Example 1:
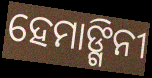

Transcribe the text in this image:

ହେମାଙ୍ଗିନୀ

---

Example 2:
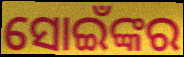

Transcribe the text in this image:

ସୋଇଁଙ୍କର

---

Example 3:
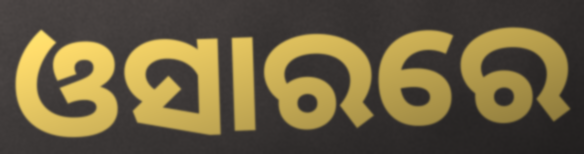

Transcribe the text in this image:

ଓସାରରେ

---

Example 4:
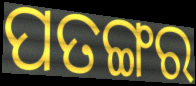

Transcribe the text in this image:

ପତଙ୍ଗର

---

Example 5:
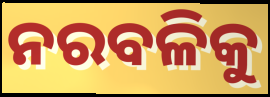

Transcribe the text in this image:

ନରବଳିକୁ